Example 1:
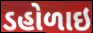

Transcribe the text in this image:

ડહોળાઇ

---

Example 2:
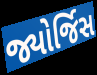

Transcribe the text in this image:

જ્યોર્જિસ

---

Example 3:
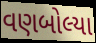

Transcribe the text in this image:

વણબોલ્યા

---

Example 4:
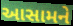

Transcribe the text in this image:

આસામને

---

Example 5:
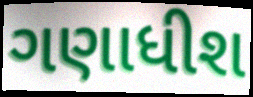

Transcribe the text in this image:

ગણાધીશ